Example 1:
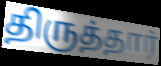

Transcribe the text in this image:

திருத்தார்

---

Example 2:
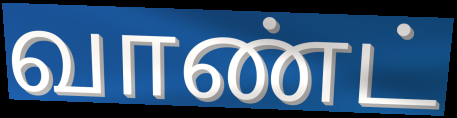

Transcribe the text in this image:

வாண்ட்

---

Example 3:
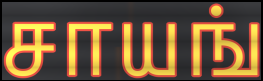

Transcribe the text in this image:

சாயங்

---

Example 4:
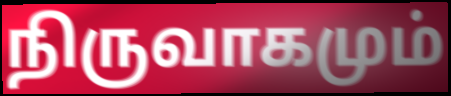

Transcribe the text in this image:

நிருவாகமும்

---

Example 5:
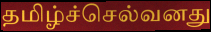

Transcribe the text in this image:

தமிழ்ச்செல்வனது